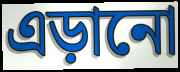
এড়ানো